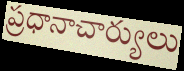
ప్రధానాచార్యులు